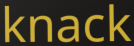
knack